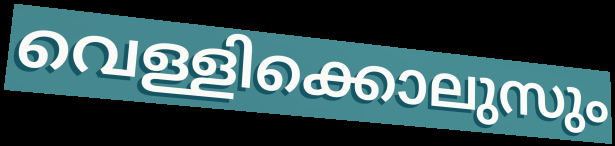
വെള്ളിക്കൊലുസും